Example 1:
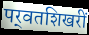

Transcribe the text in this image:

पर्वतशिखरीं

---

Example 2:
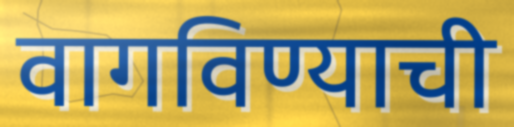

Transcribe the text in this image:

वागविण्याची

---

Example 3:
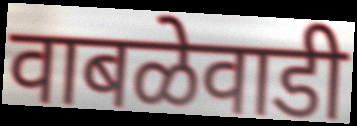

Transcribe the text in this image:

वाबळेवाडी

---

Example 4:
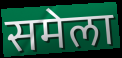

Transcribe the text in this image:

समेला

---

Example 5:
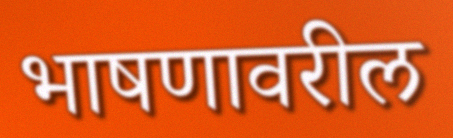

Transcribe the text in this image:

भाषणावरील